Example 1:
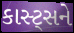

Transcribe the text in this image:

કાસ્ટ્સને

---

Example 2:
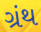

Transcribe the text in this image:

ગ્રંથ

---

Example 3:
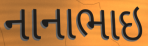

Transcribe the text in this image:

નાનાભાઇ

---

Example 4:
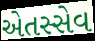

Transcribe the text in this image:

એતસ્સેવ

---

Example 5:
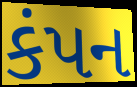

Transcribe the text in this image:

કંપન